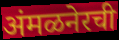
अंमळनेरची